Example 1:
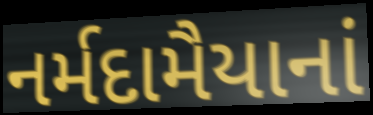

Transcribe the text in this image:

નર્મદામૈયાનાં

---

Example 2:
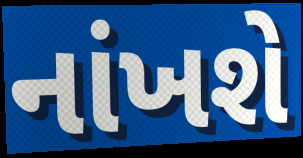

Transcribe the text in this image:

નાંખશે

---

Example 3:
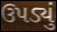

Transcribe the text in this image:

ઉપડ્યું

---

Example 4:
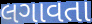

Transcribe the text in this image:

લગાવતા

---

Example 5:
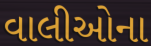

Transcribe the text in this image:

વાલીઓના